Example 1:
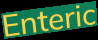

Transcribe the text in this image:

Enteric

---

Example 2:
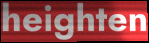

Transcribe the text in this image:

heighten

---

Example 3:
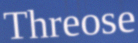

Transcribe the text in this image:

Threose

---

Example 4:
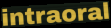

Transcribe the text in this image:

intraoral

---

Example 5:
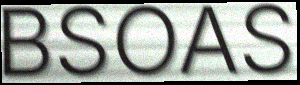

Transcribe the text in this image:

BSOAS